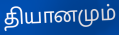
தியானமும்